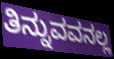
ತಿನ್ನುವವನಲ್ಲ